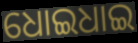
ଧୋଇଧାଇ